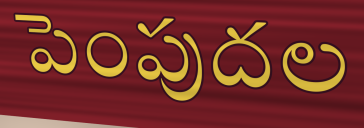
పెంపుదల